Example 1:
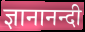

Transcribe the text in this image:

ज्ञानानन्दी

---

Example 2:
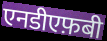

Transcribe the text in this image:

एनडीएफ़बी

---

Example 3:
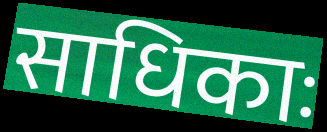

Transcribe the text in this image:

साधिकाः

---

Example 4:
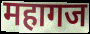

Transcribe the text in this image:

महागज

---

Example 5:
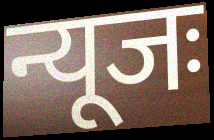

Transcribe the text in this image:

न्यूजः